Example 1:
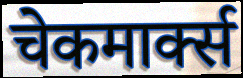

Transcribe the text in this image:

चेकमार्क्स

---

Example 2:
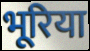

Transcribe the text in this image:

भूरिया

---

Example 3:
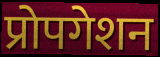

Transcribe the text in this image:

प्रोपगेशन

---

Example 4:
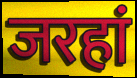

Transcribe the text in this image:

जरहां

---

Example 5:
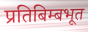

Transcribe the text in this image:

प्रतिबिम्बभूत